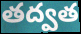
తద్వత